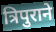
त्रिपुराने